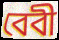
বেবী